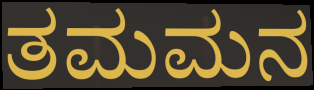
ತಮಮನ